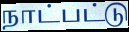
நாட்பட்டு